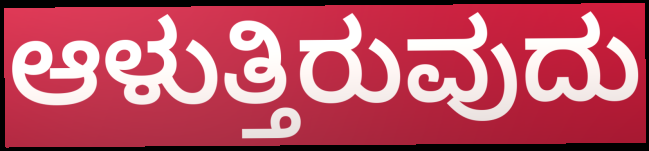
ಆಳುತ್ತಿರುವುದು